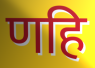
णहि